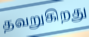
தவறுகிறது